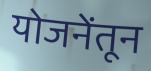
योजनेंतून